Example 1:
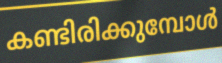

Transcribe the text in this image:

കണ്ടിരിക്കുമ്പോൾ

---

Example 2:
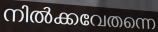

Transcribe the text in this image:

നിൽക്കവേതന്നെ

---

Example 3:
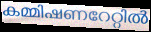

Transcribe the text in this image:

കമ്മിഷണറേറ്റിൽ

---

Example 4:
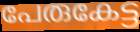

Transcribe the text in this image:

പേരുകേട്ട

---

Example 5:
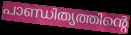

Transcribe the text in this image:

പാണ്ഡിത്യത്തിന്റെ